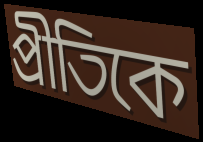
প্রীতিকে